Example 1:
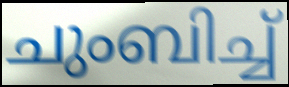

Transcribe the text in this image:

ചുംബിച്ച്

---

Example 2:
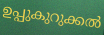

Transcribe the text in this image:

ഉപ്പുകുറുക്കൽ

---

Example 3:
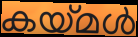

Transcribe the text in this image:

കയ്മൾ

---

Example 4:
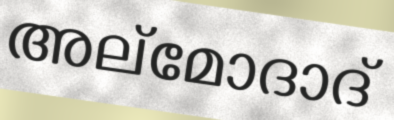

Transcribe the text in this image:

അല്മോദാദ്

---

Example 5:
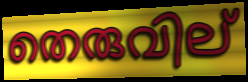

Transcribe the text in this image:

തെരുവില്